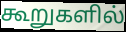
கூறுகளில்